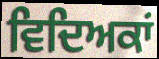
ਵਿਦਿਅਕਾਂ